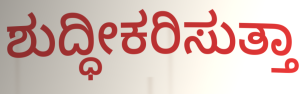
ಶುದ್ಧೀಕರಿಸುತ್ತಾ